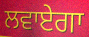
ਲਵਾਏਗਾ